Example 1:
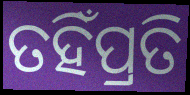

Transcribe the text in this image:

ତହିଁପ୍ରତି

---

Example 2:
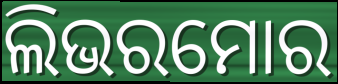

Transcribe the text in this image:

ଲିଭରମୋର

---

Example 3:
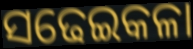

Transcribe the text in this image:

ସଢେଇକଳା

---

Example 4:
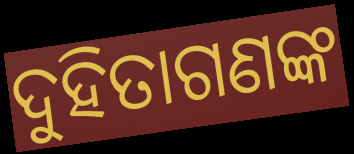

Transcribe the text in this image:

ଦୁହିତାଗଣଙ୍କ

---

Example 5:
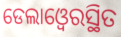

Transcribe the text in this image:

ଡେଲାଓ୍ବେରସ୍ଥିତ